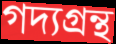
গদ্যগ্রন্থ